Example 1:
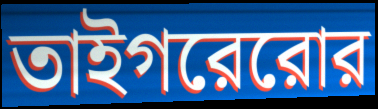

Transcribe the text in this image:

তাইগরেরোর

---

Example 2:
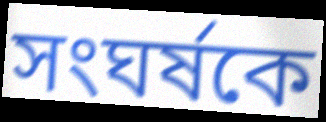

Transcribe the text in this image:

সংঘর্ষকে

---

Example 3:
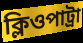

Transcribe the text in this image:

ক্লিওপাট্রা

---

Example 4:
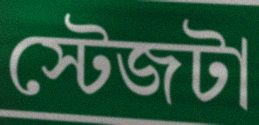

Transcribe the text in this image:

স্টেজটা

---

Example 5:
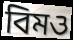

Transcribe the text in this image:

বিমও